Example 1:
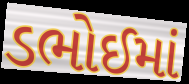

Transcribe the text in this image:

ડભોઈમાં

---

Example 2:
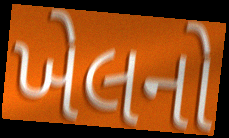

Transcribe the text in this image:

ખેલનો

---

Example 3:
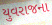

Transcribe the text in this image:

યુવરાજના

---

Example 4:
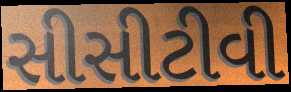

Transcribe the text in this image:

સીસીટીવી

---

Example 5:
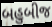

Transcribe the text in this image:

બહુબીજ